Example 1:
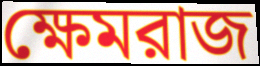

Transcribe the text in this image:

ক্ষেমরাজ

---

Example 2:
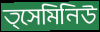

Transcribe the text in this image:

ত্সেমিনিউ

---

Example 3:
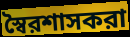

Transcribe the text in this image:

স্বৈরশাসকরা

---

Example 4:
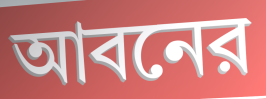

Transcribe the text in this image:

আবনের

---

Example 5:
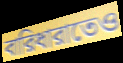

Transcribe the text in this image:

বারিধারাতেও